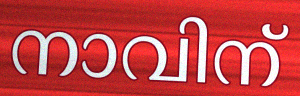
നാവിന്